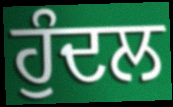
ਹੁੰਦਲ